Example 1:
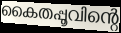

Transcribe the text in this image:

കൈതപ്പൂവിന്റെ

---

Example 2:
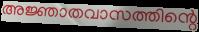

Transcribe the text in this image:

അജ്ഞാതവാസത്തിന്റെ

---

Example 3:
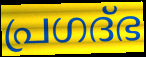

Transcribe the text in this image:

പ്രഗദ്ഭ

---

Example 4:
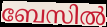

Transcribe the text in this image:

ബേസിൽ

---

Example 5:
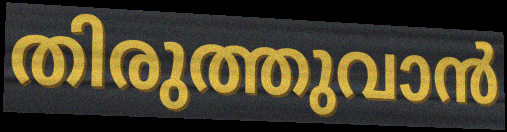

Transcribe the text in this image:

തിരുത്തുവാൻ